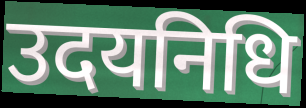
उदयनिधि